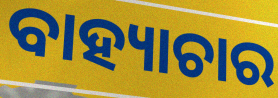
ବାହ୍ୟାଚାର